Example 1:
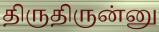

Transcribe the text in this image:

திருதிருன்னு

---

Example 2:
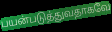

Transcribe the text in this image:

பயன்படுத்துவதாகவே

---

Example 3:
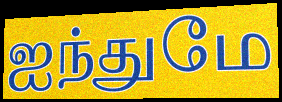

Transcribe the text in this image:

ஐந்துமே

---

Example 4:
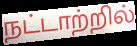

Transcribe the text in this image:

நட்டாற்றில்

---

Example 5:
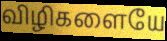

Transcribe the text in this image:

விழிகளையே